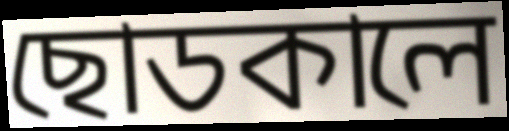
ছোডকালে